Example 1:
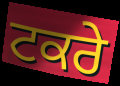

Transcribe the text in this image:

ਟਕਰੇ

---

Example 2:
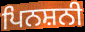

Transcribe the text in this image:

ਪਿਨਸ਼ਨੀ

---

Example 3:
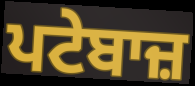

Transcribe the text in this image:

ਪਟੇਬਾਜ਼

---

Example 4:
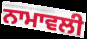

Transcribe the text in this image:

ਨਾਮਾਵਲੀ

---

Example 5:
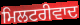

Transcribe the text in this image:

ਮਿਲਟਰੀਵਾਦ